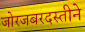
जोरजबरदस्तीने